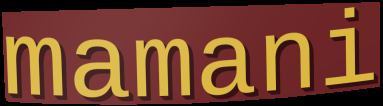
mamani